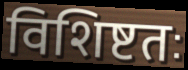
विशिष्टतः